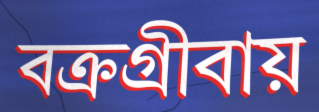
বক্রগ্রীবায়